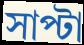
সাপ্টা